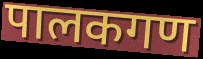
पालकगण